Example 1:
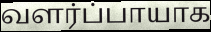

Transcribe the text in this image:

வளர்ப்பாயாக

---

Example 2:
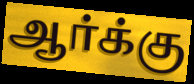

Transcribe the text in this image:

ஆர்க்கு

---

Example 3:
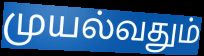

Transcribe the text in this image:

முயல்வதும்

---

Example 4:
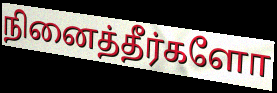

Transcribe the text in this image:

நினைத்தீர்களோ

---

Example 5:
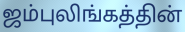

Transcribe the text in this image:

ஜம்புலிங்கத்தின்